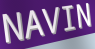
NAVIN